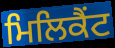
ਮਿਲਿਕੈਂਟ